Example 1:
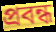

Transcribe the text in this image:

প্ৰবন্ধ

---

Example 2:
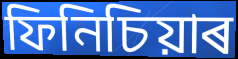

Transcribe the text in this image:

ফিনিচিয়াৰ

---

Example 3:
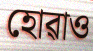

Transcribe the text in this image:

হোৱাও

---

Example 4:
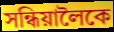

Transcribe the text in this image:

সন্ধিয়ালৈকে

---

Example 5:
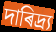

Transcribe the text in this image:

দাৰিদ্ৰ্য